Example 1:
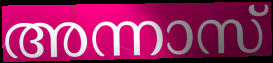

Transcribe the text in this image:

അന്നാസ്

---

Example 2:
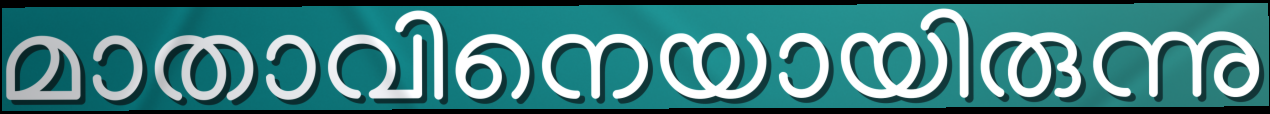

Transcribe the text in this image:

മാതാവിനെയായിരുന്നു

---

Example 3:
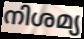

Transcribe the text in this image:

നിശമ്യ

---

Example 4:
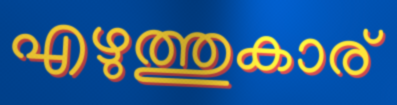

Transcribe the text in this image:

എഴുത്തുകാര്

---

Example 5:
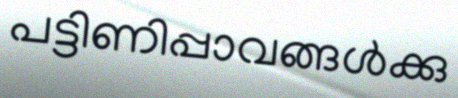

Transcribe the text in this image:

പട്ടിണിപ്പാവങ്ങൾക്കു